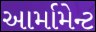
આર્મામેન્ટ